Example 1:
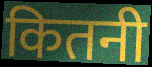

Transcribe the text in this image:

कितनी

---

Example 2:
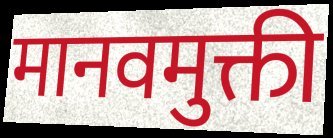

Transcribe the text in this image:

मानवमुक्ती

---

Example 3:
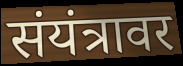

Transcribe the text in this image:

संयंत्रावर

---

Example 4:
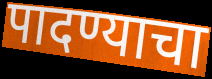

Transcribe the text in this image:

पादण्याचा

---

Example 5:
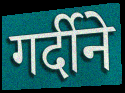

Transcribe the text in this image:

गर्दीने